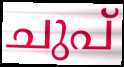
ചുപ്